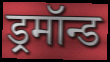
ड्रमॉन्ड